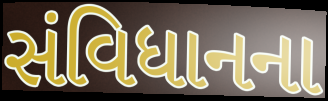
સંવિધાનના